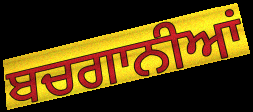
ਬਚਗਾਨੀਆਂ